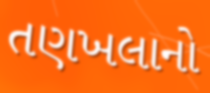
તણખલાનો